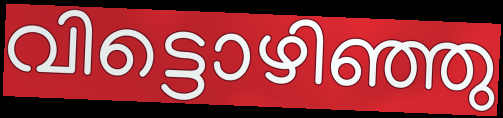
വിട്ടൊഴിഞ്ഞു